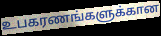
உபகரணங்களுக்கான